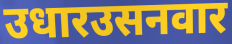
उधारउसनवार